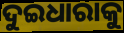
ଦୁଇଧାରାକୁ